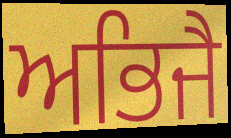
ਅਭਿਜੈ